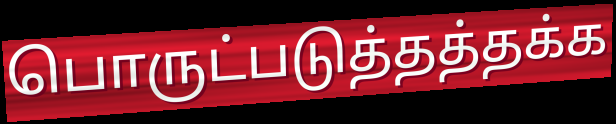
பொருட்படுத்தத்தக்க